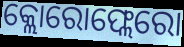
କ୍ଲୋରୋଫ୍ଲେରୋ